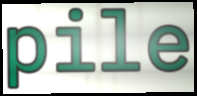
pile